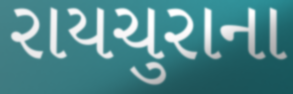
રાયચુરાના